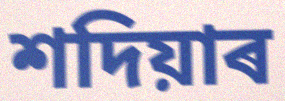
শদিয়াৰ